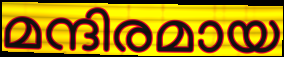
മന്ദിരമായ